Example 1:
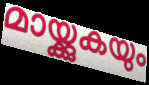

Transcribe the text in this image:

മായ്ക്കുകയും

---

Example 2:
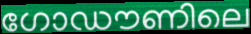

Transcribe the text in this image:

ഗോഡൗണിലെ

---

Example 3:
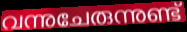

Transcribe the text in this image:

വന്നുചേരുന്നുണ്ട്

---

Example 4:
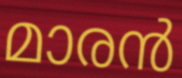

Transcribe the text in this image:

മാരൻ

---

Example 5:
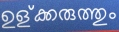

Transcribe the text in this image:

ഉള്ക്കരുത്തും